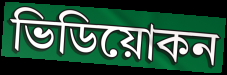
ভিডিয়োকন